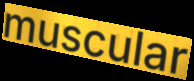
muscular